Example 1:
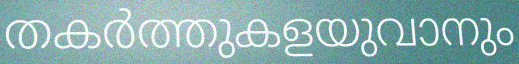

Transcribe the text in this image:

തകർത്തുകളയുവാനും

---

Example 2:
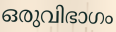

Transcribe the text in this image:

ഒരുവിഭാഗം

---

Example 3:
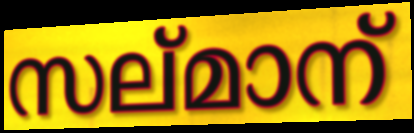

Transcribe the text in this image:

സല്മാന്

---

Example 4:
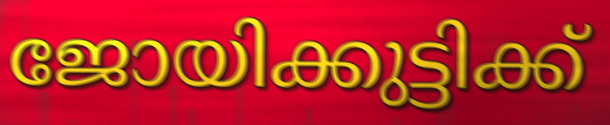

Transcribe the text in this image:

ജോയിക്കുട്ടിക്ക്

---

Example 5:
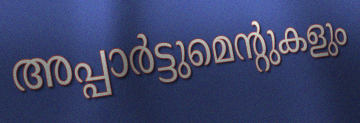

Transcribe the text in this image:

അപ്പാർട്ടുമെന്റുകളും